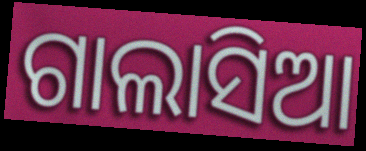
ଗାଲାସିଆ